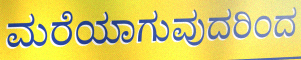
ಮರೆಯಾಗುವುದರಿಂದ